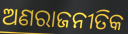
ଅଣରାଜନୀତିକ